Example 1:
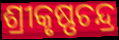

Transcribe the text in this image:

ଶ୍ରୀକୃଷ୍ଣଚନ୍ଦ୍ର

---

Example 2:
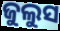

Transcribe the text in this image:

ଜୁଲୁସ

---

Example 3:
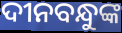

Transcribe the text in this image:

ଦୀନବନ୍ଧୁଙ୍କ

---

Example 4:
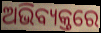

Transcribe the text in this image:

ଅଭିବ୍ୟକ୍ତରେ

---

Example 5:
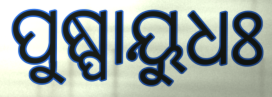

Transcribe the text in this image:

ପୁଷ୍ପାୟୁଧଃ